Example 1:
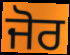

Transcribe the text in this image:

ਜੋਰ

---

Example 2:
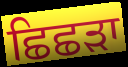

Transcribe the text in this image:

ਛਿਛੜਾ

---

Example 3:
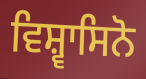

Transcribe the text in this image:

ਵਿਸ਼੍ਵਾਸਿਨੋ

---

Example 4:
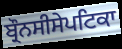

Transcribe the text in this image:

ਬ੍ਰੌਨਸੀਸੇਪਟਿਕਾ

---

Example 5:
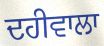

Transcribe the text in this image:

ਦਹੀਵਾਲਾ